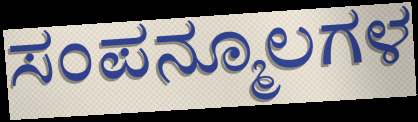
ಸಂಪನ್ಮೂಲಗಳ